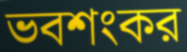
ভবশংকর